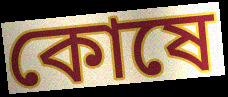
কোষে